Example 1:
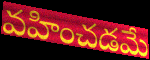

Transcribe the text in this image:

వహించడమే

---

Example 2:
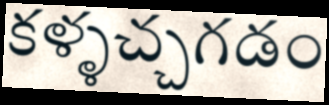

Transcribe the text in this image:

కళ్ళచ్చగడం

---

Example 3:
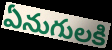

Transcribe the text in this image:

ఏనుగులకి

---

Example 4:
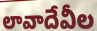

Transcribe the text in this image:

లావాదేవీల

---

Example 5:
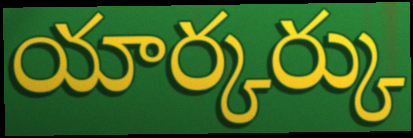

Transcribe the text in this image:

యార్కర్కు